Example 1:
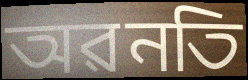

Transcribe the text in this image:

অৱনতি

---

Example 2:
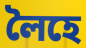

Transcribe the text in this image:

লৈহে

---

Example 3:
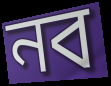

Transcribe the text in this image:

নব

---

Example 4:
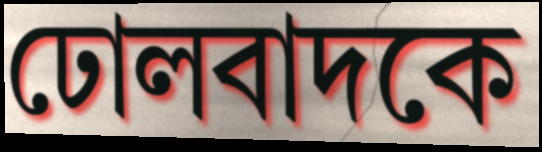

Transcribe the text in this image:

ঢোলবাদকে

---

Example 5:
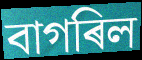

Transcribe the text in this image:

বাগৰিল